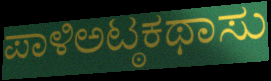
ಪಾಳಿಅಟ್ಠಕಥಾಸು